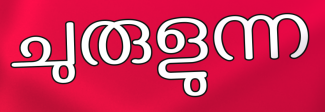
ചുരുളുന്ന